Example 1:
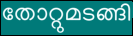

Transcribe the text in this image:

തോറ്റുമടങ്ങി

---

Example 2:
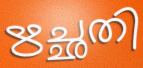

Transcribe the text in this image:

ഋച്ഛതി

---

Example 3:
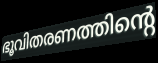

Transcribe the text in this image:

ഭൂവിതരണത്തിന്റെ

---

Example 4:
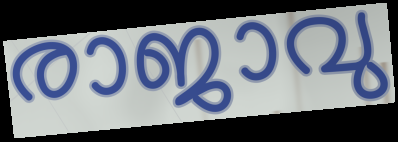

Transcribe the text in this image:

രാജാവു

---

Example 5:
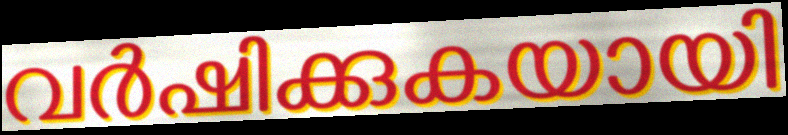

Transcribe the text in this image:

വർഷിക്കുകയായി